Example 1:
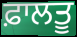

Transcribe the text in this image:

ਫ਼ਾਲਤੂ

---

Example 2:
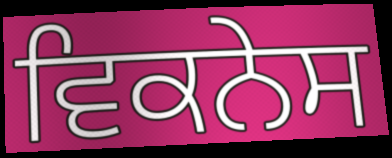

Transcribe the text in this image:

ਵਿਕਨੇਸ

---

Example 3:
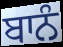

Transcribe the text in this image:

ਬਾਨੰ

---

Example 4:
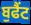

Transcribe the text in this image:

ਬੁਫੈਂਟ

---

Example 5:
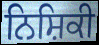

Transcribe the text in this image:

ਨਿਸ਼ਿਕੀ